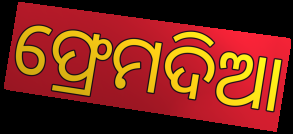
ଫ୍ରେମଦିଆ